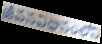
జీవనవిధానంలోని